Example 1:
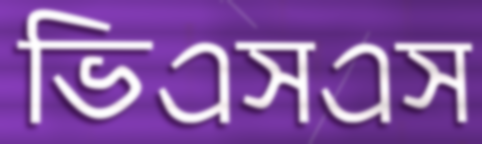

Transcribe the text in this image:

ভিএসএস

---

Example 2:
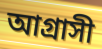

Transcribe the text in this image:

আগ্রাসী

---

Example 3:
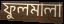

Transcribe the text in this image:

ফুলমালা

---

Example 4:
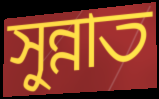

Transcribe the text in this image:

সুন্নাত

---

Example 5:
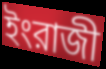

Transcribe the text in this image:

ইংরাজী